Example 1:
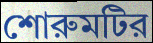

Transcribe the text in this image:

শোরুমটির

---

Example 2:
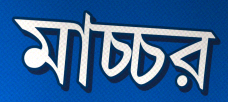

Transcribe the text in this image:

মাচ্চর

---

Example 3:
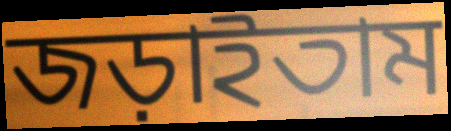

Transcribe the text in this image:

জড়াইতাম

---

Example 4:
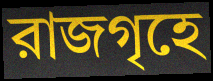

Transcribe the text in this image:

রাজগৃহে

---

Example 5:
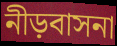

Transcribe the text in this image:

নীড়বাসনা